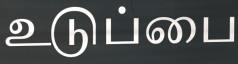
உடுப்பை